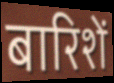
बारिशें